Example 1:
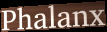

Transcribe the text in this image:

Phalanx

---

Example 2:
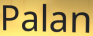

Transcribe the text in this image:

Palan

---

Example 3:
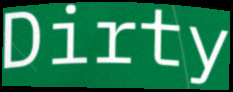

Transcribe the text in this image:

Dirty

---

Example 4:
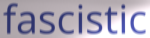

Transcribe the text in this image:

fascistic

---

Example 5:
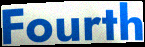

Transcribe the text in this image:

Fourth